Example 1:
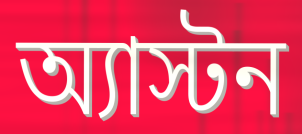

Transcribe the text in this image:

অ্যাস্টন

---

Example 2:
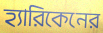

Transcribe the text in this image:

হ্যারিকেনের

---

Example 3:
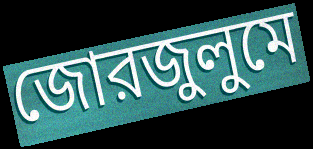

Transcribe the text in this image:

জোরজুলুমে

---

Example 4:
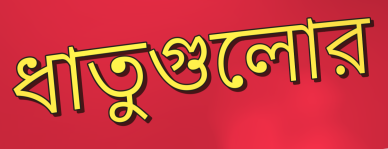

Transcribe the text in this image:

ধাতুগুলোর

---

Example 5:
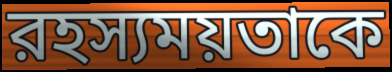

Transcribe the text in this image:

রহস্যময়তাকে